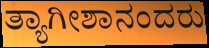
ತ್ಯಾಗೀಶಾನಂದರು